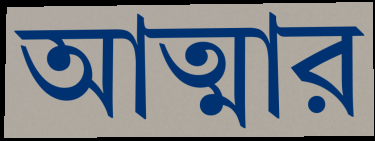
আত্মার